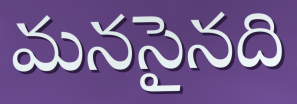
మనసైనది